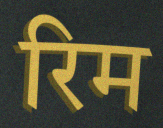
रिम